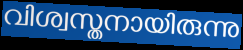
വിശ്വസ്തനായിരുന്നു